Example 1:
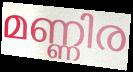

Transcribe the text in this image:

മണ്ണിര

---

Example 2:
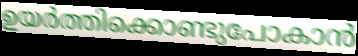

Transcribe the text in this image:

ഉയർത്തിക്കൊണ്ടുപോകാൻ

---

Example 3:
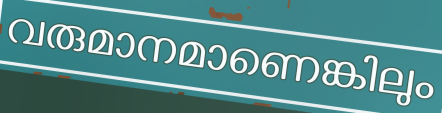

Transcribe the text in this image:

വരുമാനമാണെങ്കിലും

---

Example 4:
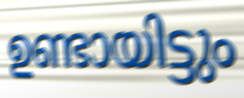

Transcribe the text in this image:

ഉണ്ടായിട്ടും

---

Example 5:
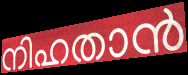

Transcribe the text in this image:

നിഹതാൻ